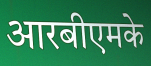
आरबीएमके